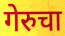
गेरुचा